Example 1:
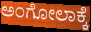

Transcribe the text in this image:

ಅಂಗೋಲಾಕ್ಕೆ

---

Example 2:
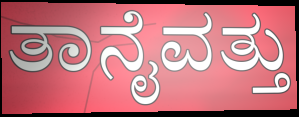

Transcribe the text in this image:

ತಾನೈವತ್ತು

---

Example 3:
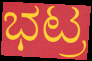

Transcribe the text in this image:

ಭಟ್ರ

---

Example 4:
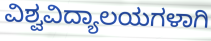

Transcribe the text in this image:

ವಿಶ್ವವಿದ್ಯಾಲಯಗಳಾಗಿ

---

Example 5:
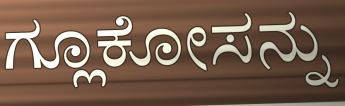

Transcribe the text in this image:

ಗ್ಲೂಕೋಸನ್ನು